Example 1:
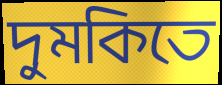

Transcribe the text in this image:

দুমকিতে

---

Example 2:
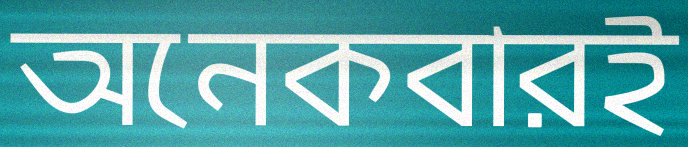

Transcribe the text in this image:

অনেকবারই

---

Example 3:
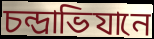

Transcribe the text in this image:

চন্দ্রাভিযানে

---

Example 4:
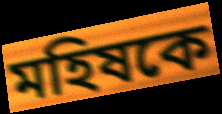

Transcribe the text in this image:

মহিষকে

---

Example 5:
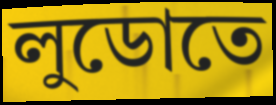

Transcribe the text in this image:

লুডোতে